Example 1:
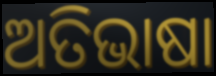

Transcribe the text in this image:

ଅତିଭାଷା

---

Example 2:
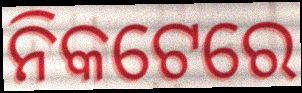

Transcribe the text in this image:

ନିକଟେରେ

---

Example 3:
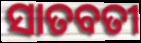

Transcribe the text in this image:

ସାତବତୀ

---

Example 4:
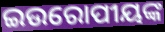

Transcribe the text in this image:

ଇଉରୋପୀୟଙ୍କ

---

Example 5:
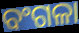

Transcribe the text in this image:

ବଂଗଳା